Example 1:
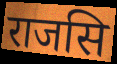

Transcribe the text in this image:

राजसि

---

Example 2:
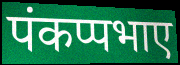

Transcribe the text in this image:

पंकप्पभाए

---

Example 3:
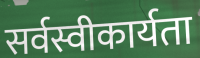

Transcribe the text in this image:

सर्वस्वीकार्यता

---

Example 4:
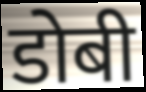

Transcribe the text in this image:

डोबी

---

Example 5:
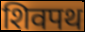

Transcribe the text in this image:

शिवपथ